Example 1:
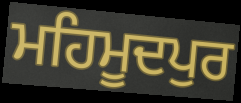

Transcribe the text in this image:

ਮਹਿਮੂਦਪੁਰ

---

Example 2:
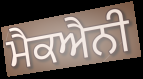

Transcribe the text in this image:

ਮੈਕਐਨੀ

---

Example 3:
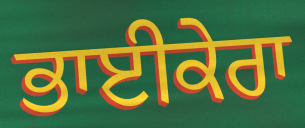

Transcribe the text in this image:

ਭਾਈਕੇਰਾ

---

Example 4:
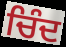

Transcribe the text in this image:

ਚਿੰਦ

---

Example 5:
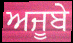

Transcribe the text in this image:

ਅਜੂਬੇ